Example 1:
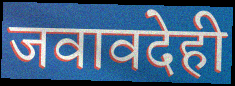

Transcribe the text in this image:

जवावदेही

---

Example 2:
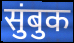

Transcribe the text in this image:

सुंबुक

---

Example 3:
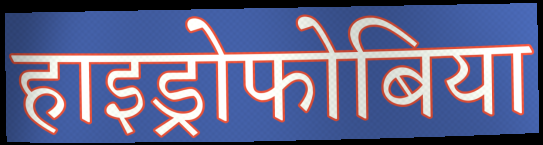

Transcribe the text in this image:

हाइड्रोफोबिया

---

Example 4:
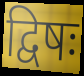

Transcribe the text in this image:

द्विषः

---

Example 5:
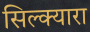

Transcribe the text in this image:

सिल्क्यारा